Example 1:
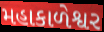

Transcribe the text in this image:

મહાકાળેશ્વર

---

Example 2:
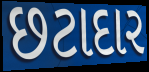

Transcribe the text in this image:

છટાદાર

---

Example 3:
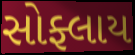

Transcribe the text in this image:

સોફ્લાય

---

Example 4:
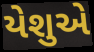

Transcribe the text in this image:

યેશુએ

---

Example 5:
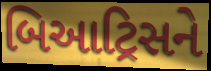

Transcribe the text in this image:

બિઆટ્રિસને